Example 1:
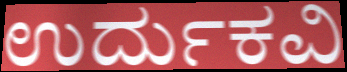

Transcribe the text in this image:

ಉರ್ದುಕವಿ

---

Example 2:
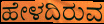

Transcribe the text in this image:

ಹೇಳದಿರುವ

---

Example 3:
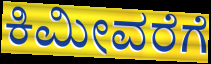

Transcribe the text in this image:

ಕಿಮೀವರೆಗೆ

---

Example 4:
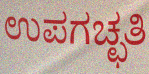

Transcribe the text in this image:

ಉಪಗಚ್ಛತಿ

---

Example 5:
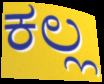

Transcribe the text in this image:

ಕಲ್ಲ